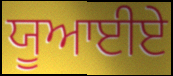
ਯੂਆਈਏ